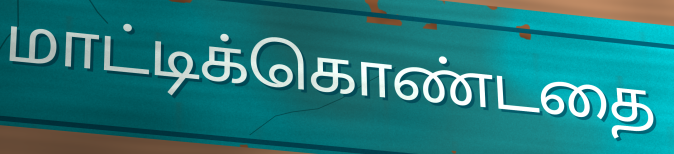
மாட்டிக்கொண்டதை